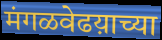
मंगळवेढय़ाच्या